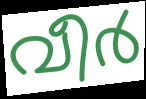
വീർ